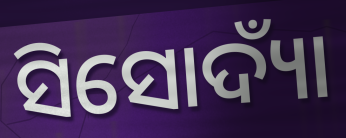
ସିସୋଦ୍ୟାଁ